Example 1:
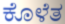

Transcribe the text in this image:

ಕೊಳೆತ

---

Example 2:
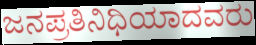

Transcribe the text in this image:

ಜನಪ್ರತಿನಿಧಿಯಾದವರು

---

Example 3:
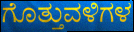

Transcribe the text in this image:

ಗೊತ್ತುವಳಿಗಳ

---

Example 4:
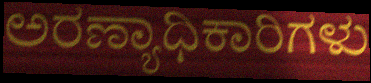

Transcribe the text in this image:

ಅರಣ್ಯಾಧಿಕಾರಿಗಳು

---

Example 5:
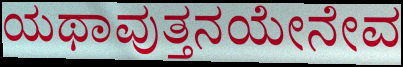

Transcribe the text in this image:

ಯಥಾವುತ್ತನಯೇನೇವ